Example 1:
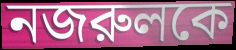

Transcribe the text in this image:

নজরুলকে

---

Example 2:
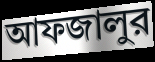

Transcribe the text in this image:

আফজালুর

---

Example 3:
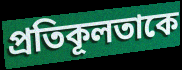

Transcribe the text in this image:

প্রতিকূলতাকে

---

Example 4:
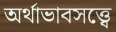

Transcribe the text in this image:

অর্থাভাবসত্ত্বে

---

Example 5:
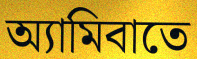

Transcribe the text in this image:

অ্যামিবাতে